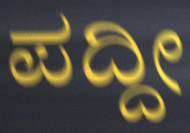
ಪದ್ದೀ